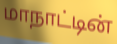
மாநாட்டின்